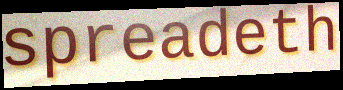
spreadeth